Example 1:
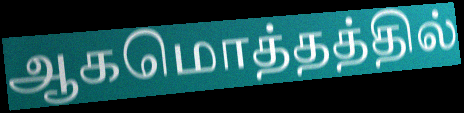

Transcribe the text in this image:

ஆகமொத்தத்தில்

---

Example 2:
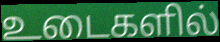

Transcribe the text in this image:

உடைகளில்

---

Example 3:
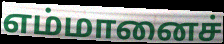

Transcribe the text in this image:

எம்மானைச்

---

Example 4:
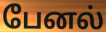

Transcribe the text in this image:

பேனல்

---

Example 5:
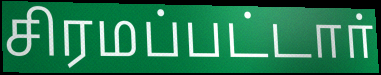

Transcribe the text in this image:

சிரமப்பட்டார்